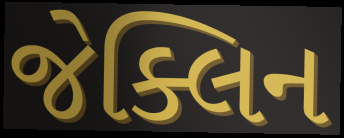
જેક્લિન